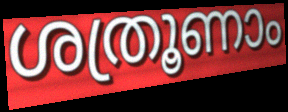
ശത്രൂണാം